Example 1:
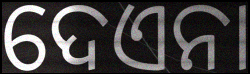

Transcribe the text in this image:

ଦେଏନା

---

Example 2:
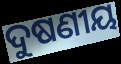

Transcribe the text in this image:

ଦୁଷଣୀୟ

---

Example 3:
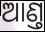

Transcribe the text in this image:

ଆଣ୍ତ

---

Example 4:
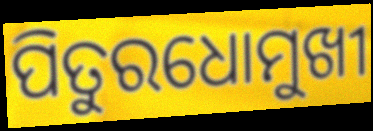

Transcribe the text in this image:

ପିତୁରଧୋମୁଖୀ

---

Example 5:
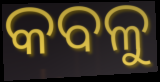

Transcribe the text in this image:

କବଳୁ